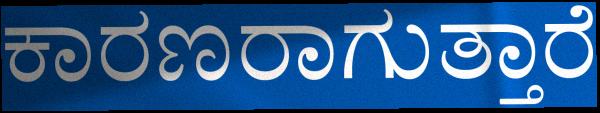
ಕಾರಣರಾಗುತ್ತಾರೆ